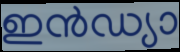
ഇൻഡ്യാ